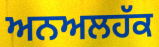
ਅਨਅਲਹੱਕ